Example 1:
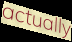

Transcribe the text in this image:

actually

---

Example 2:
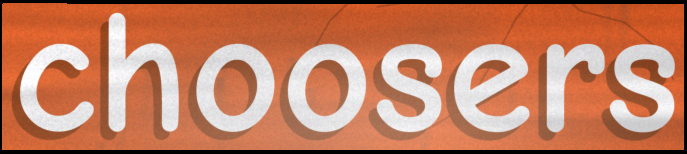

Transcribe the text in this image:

choosers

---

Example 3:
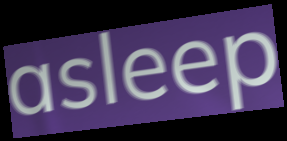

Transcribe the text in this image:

asleep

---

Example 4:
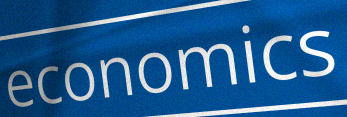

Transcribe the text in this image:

economics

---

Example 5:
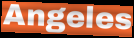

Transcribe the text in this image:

Angeles